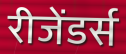
रीजेंडर्स